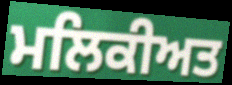
ਮਲਿਕੀਅਤ